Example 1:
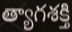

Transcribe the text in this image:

త్యాగశక్తి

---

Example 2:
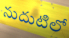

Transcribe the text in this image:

నుదుటిలో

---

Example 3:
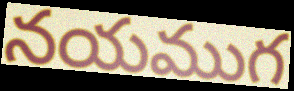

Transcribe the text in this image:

నయముగ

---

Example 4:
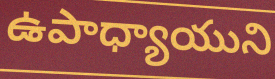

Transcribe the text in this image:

ఉపాధ్యాయుని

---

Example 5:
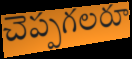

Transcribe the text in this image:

చెప్పగలరూ